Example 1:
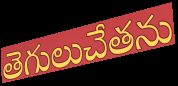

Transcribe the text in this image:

తెగులుచేతను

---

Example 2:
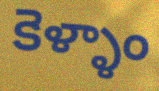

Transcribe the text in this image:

కెళ్ళాం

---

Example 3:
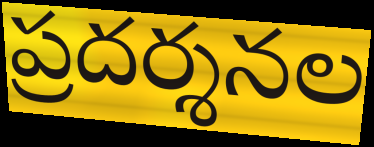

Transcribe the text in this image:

ప్రదర్శనల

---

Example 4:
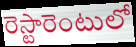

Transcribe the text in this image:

రెస్టారెంటులో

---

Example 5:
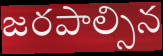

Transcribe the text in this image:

జరపాల్సిన